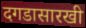
दगडासारखी